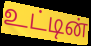
உட்டின்